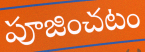
పూజించటం